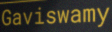
Gaviswamy